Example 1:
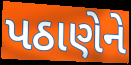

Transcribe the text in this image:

પઠાણેને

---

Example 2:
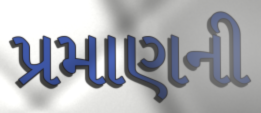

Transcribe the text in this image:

પ્રમાણની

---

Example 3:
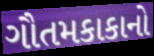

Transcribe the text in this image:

ગૌતમકાકાનો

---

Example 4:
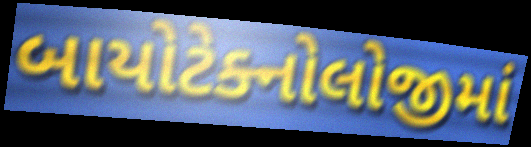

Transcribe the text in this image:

બાયોટેક્નોલોજીમાં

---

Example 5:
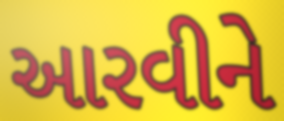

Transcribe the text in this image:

આરવીને